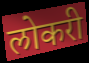
लोकरी